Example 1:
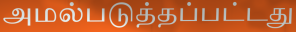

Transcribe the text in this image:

அமல்படுத்தப்பட்டது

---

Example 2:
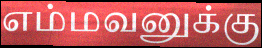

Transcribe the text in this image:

எம்மவனுக்கு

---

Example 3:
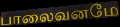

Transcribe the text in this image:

பாலைவனமே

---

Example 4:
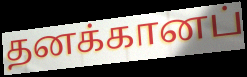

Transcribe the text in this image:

தனக்கானப்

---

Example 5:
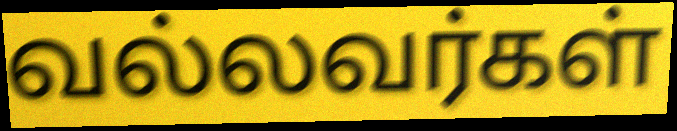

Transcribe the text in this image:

வல்லவர்கள்